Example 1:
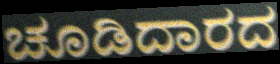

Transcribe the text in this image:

ಚೂಡಿದಾರದ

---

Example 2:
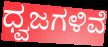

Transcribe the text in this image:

ಧ್ವಜಗಳಿವೆ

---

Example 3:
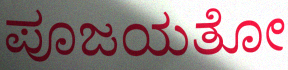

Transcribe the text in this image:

ಪೂಜಯತೋ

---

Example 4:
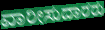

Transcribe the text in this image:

ವಾರೀಸುದಾರರು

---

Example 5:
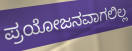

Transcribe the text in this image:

ಪ್ರಯೋಜನವಾಗಲಿಲ್ಲ